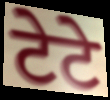
टेटे